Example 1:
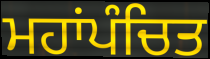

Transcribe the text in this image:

ਮਹਾਂਪੰਚਿਤ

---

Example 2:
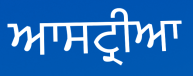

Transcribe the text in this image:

ਆਸਟ੍ਰੀਆ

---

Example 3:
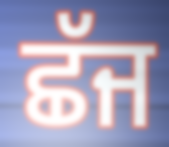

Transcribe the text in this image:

ਛੱਜ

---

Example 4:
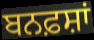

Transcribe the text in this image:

ਬਨਫ਼ਸ਼ਾਂ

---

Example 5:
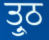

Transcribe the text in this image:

ਤ੍ਰੁਠ